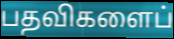
பதவிகளைப்